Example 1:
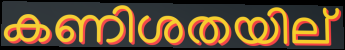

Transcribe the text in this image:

കണിശതയില്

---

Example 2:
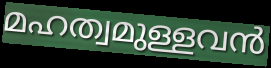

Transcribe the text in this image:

മഹത്വമുള്ളവൻ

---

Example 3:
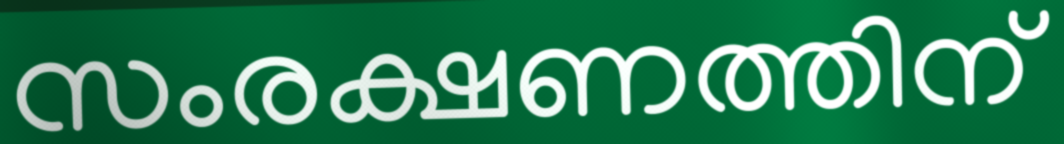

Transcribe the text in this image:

സംരക്ഷണത്തിന്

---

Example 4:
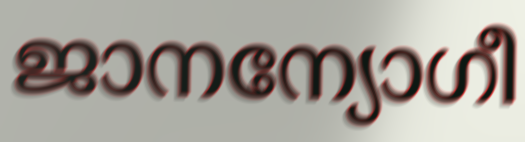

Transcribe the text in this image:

ജാനന്യോഗീ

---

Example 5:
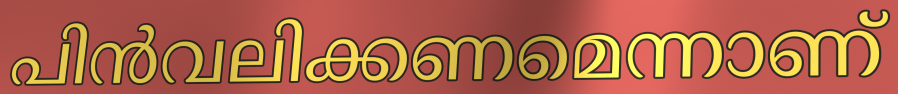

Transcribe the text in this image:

പിൻവലിക്കണമെന്നാണ്